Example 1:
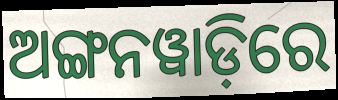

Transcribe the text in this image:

ଅଙ୍ଗନୱାଡ଼ିରେ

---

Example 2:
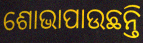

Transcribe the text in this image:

ଶୋଭାପାଉଛନ୍ତି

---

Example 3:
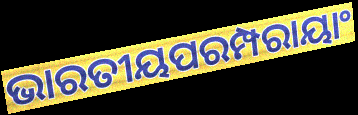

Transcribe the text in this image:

ଭାରତୀୟପରମ୍ପରାୟାଂ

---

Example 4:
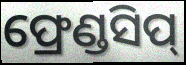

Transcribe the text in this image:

ଫ୍ରେଣ୍ଡସିପ୍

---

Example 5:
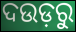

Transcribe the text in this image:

ଦଉଡ଼ରୁ